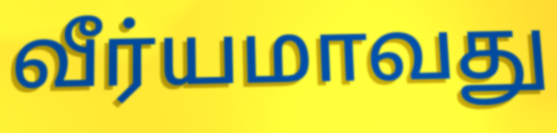
வீர்யமாவது